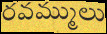
రవమ్ములు